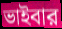
ভাইবার